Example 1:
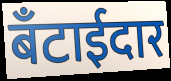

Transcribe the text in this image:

बँटाईदार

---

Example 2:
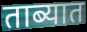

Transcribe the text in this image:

ताब्यात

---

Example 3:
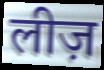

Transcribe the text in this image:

लीज़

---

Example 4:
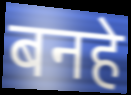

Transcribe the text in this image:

बनहे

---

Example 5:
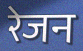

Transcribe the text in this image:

रेजन